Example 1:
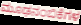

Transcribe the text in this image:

ಮೂಢನಂಬಿಕೆಗಳ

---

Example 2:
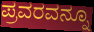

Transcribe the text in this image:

ಪ್ರವರವನ್ನೂ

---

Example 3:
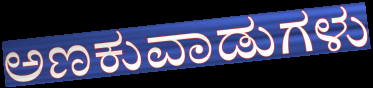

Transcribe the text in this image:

ಅಣಕುವಾಡುಗಳು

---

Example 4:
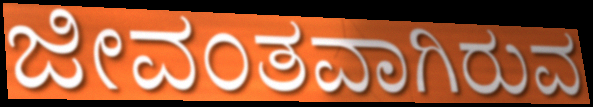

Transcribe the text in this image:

ಜೀವಂತವಾಗಿರುವ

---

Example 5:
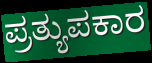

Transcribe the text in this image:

ಪ್ರತ್ಯುಪಕಾರ